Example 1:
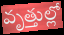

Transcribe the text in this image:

వృత్తుల్లో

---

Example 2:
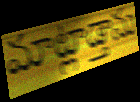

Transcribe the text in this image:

మాట్లాడ్తాను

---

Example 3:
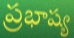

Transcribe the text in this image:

ప్రభాష్య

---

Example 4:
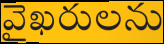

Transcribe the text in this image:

వైఖరులను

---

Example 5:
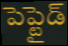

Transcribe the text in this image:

పెప్టైడ్